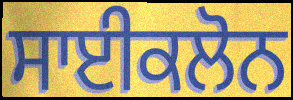
ਸਾਈਕਲੋਨ